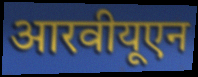
आरवीयूएन